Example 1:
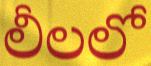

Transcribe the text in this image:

లీలలో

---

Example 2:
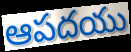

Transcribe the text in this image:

ఆపదయు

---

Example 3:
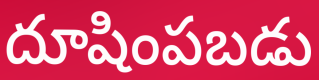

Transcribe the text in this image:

దూషింపబడు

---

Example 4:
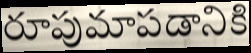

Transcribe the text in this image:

రూపుమాపడానికి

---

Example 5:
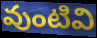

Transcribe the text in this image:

వుంటివి